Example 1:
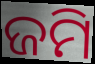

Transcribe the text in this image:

ଜମି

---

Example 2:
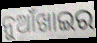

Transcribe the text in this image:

ନୁଆଁଖାଇର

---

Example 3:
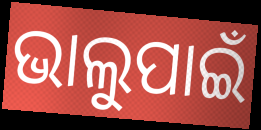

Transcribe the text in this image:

ଭାଲୁପାଇଁ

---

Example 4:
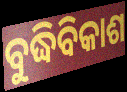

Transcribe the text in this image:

ବୁଦ୍ଧିବିକାଶ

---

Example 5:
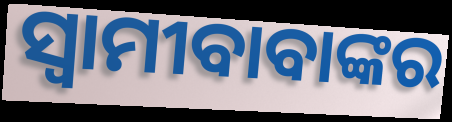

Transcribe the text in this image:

ସ୍ଵାମୀବାବାଙ୍କର